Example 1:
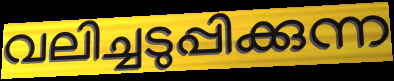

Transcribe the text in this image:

വലിച്ചടുപ്പിക്കുന്ന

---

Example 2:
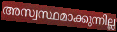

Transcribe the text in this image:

അസ്വസ്ഥമാക്കുന്നില്ല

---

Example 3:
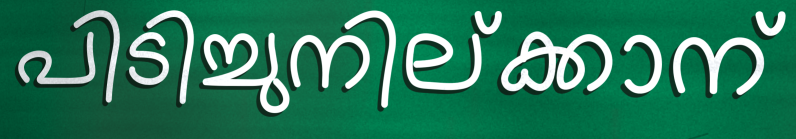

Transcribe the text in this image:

പിടിച്ചുനില്ക്കാന്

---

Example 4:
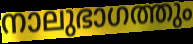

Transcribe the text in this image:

നാലുഭാഗത്തും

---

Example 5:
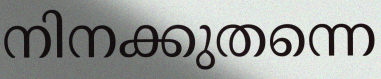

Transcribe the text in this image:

നിനക്കുതന്നെ